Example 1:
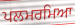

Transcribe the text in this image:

ਪਲਮਰਮਿਆ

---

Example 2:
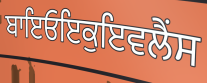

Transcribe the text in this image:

ਬਾਇਓਇਕੁਇਵਲੈਂਸ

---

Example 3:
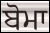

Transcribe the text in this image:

ਬੋਮਾ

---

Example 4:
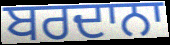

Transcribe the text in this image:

ਬਰਦਾਨਾ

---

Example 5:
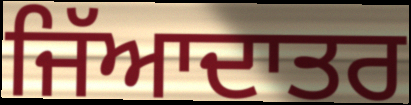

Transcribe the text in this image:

ਜਿੱਆਦਾਤਰ